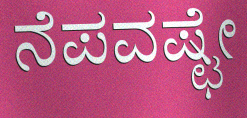
ನೆಪವಷ್ಟೇ